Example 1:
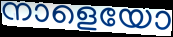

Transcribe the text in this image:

നാളെയോ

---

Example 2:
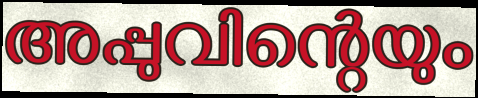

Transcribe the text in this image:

അപ്പുവിന്റെയും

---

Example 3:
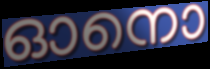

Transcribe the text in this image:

ഓനൊ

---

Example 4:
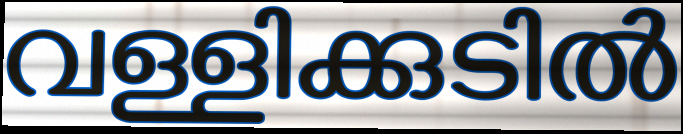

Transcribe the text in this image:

വള്ളിക്കുടിൽ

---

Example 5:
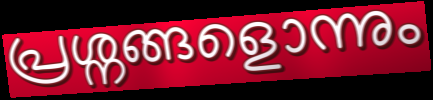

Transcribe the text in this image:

പ്രശ്നങ്ങളൊന്നും